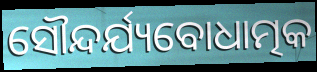
ସୌନ୍ଦର୍ଯ୍ୟବୋଧାତ୍ମକ